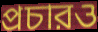
প্রচারও